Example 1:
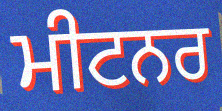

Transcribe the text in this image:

ਮੀਟਨਰ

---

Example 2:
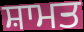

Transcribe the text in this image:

ਸ਼ਾਮਤ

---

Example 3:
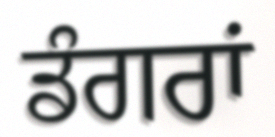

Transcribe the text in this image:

ਡੰਗਰਾਂ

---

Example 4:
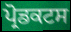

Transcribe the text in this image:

ਪ੍ਰੋਡਕਟਸ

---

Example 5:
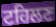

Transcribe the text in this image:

ਟਹਿਲਣ